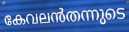
കേവലൻതന്നുടെ